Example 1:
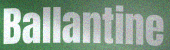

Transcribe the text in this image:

Ballantine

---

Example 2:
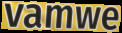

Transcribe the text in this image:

vamwe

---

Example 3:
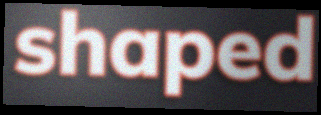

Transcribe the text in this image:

shaped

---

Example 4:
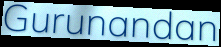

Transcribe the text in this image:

Gurunandan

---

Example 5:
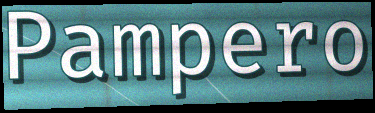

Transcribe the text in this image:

Pampero